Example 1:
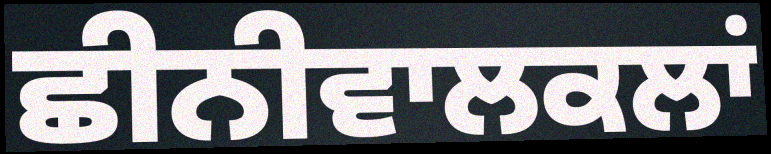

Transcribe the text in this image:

ਛੀਨੀਵਾਲਕਲਾਂ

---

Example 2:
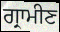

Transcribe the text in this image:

ਗ੍ਰਾਮੀਣ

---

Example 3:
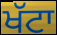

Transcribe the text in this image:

ਖੱਟਾ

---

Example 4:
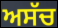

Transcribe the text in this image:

ਅਸੱਚ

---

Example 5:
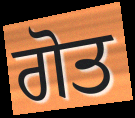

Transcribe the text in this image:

ਗੋਤ